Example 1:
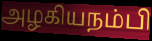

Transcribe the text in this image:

அழகியநம்பி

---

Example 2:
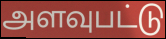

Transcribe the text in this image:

அளவுபட்டு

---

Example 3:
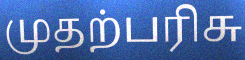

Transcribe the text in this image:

முதற்பரிசு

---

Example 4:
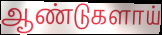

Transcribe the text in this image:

ஆண்டுகளாய்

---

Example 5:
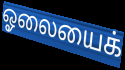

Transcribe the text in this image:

ஓலையைக்